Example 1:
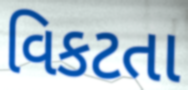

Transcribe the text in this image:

વિકટતા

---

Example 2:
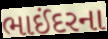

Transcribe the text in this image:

ભાઈંદરના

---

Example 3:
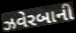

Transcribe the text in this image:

ઝવેરબાની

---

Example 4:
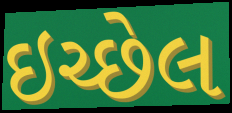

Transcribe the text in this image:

ઇચ્છેલ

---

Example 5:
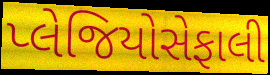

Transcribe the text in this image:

પ્લેજિયોસેફાલી